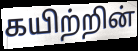
கயிற்றின்